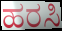
ಹರಸಿ